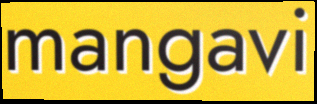
mangavi